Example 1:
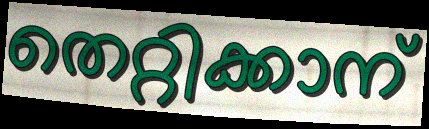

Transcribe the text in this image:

തെറ്റിക്കാന്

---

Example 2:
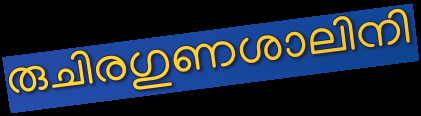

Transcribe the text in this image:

രുചിരഗുണശാലിനി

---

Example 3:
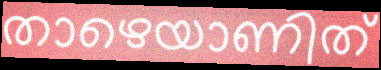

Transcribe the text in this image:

താഴെയാണിത്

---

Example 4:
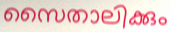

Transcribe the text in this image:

സൈതാലിക്കും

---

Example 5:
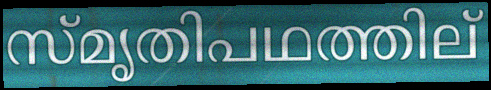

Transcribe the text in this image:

സ്മൃതിപഥത്തില്